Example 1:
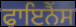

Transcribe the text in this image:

ਫਾਇਨੈਂਸ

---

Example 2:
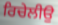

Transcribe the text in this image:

ਰਿਚੇਲੀਉ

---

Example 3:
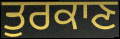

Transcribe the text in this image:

ਤੁਰਕਾਣ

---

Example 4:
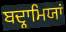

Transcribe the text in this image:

ਬਦ੍ਨਾਮਿਯਾਂ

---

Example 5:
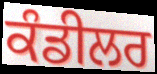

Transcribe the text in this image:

ਕੰਡੀਲਰ